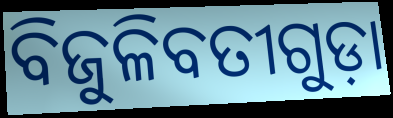
ବିଜୁଳିବତୀଗୁଡ଼ା